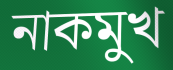
নাকমুখ